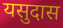
यसुदास